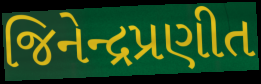
જિનેન્દ્રપ્રણીત